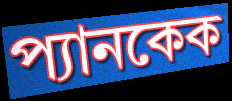
প্যানকেক